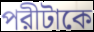
পরীটাকে